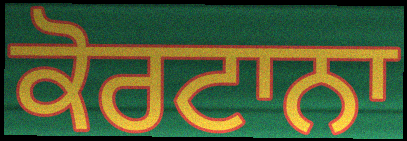
ਕੋਰਟਾਨਾ